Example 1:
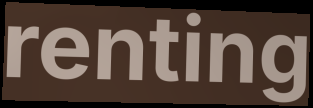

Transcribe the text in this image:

renting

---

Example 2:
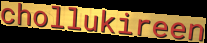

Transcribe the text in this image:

chollukireen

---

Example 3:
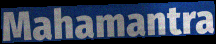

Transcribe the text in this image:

Mahamantra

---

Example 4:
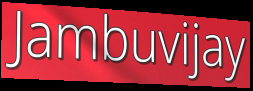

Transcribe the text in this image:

Jambuvijay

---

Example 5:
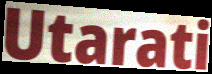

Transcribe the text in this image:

Utarati